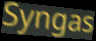
Syngas